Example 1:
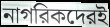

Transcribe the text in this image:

নাগরিকদেরই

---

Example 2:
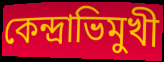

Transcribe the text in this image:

কেন্দ্রাভিমুখী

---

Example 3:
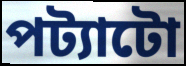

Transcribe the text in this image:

পট্যাটো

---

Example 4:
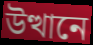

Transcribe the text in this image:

উত্থানে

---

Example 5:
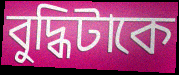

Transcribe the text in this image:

বুদ্ধিটাকে